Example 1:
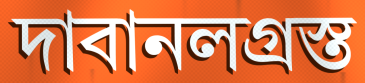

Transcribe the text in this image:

দাবানলগ্রস্ত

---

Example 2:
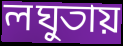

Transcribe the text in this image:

লঘুতায়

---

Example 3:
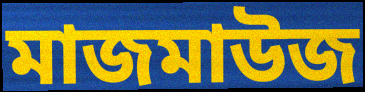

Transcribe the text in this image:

মাজমাউজ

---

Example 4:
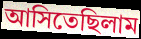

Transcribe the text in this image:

আসিতেছিলাম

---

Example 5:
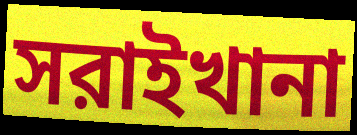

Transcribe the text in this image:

সরাইখানা